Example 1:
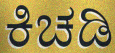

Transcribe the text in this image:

ಕಿಚಡಿ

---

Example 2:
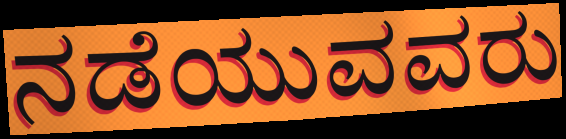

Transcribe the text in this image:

ನಡೆಯುವವರು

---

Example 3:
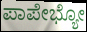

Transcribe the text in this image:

ಪಾಪೇಭ್ಯೋ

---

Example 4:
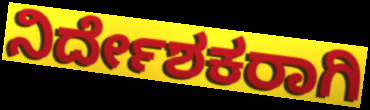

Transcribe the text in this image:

ನಿರ್ದೇಶಕರಾಗಿ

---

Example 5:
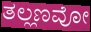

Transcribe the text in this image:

ತಲ್ಲಣವೋ